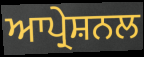
ਆਪ੍ਰੇਸ਼ਨਲ